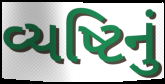
વ્યષ્ટિનું